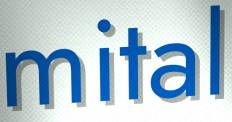
mital